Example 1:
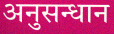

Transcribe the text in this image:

अनुसन्धान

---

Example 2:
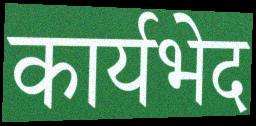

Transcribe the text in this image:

कार्यभेद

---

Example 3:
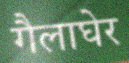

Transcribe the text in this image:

गैलाघेर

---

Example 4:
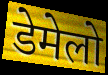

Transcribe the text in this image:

डेमेलो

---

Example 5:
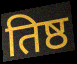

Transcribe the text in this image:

तिष्ठ